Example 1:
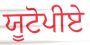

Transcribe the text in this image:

ਯੂਟੋਪੀਏ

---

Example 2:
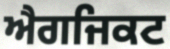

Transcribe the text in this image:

ਐਗਜਿਕਟ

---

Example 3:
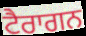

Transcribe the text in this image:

ਟੈਰਾਗਨ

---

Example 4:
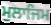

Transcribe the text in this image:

ਮੁਲਾਜਿਮ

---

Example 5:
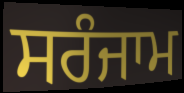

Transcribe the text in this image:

ਸਰੰਜਾਮ